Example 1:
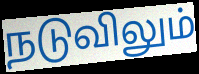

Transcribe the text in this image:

நடுவிலும்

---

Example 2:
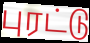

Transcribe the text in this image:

புரட்டு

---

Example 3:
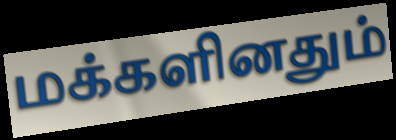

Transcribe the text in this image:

மக்களினதும்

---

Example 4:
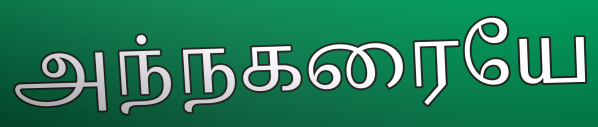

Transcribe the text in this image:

அந்நகரையே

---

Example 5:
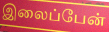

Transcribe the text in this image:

இலைப்பேன்